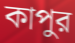
কাপুর